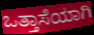
ಒತ್ತಾಸೆಯಾಗಿ